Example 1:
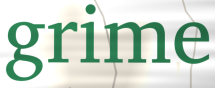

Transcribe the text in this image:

grime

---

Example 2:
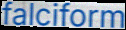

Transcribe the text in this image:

falciform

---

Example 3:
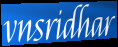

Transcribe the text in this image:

vnsridhar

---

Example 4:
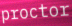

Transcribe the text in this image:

proctor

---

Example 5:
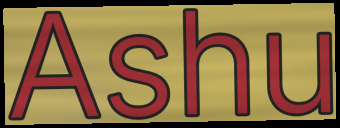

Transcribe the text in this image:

Ashu